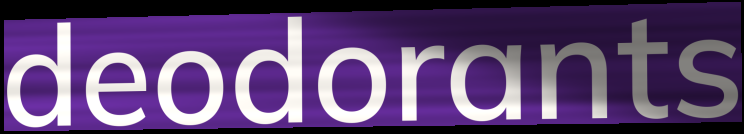
deodorants